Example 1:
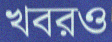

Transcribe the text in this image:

খবরও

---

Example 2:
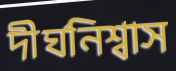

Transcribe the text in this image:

দীর্ঘনিশ্বাস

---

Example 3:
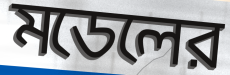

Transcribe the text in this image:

মডেলের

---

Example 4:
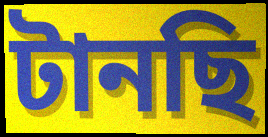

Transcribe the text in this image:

টানছি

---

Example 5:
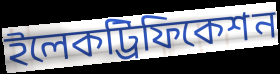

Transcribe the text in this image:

ইলেকট্রিফিকেশন